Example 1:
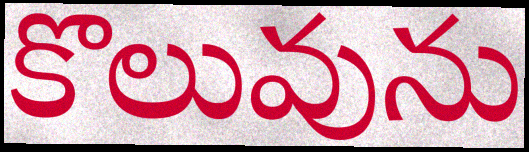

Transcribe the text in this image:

కొలువును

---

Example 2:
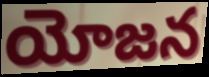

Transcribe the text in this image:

యోజన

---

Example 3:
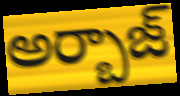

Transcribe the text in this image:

అర్బాజ్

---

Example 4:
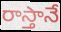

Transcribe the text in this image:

రాస్తానే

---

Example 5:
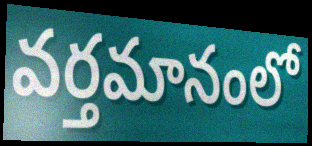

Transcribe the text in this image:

వర్తమానంలో